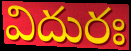
విదురః